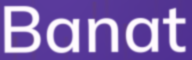
Banat